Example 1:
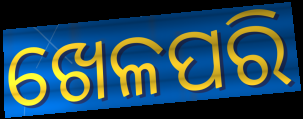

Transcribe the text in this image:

ଖେଳପରି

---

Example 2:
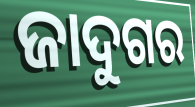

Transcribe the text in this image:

ଜାଦୁଗର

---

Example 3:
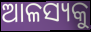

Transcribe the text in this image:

ଆଳସ୍ୟକୁ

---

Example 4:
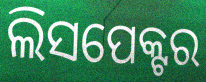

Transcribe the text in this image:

ଲିସପେକ୍ଟର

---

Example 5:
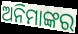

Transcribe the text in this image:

ଅନିମାଙ୍କର